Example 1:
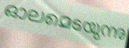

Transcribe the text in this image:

ഓലമെടയുന്നു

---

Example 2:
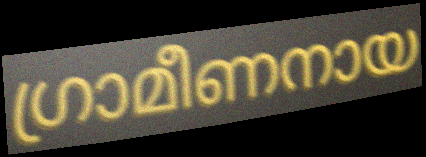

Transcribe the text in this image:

ഗ്രാമീണനായ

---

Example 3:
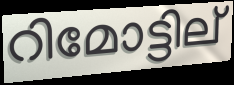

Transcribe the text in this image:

റിമോട്ടില്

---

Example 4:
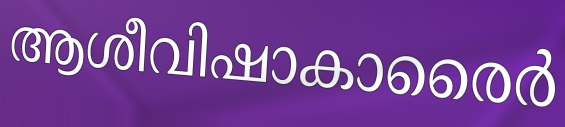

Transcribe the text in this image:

ആശീവിഷാകാരൈർ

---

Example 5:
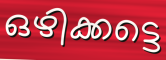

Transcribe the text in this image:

ഒഴിക്കട്ടെ